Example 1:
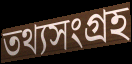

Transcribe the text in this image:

তথ্যসংগ্ৰহ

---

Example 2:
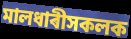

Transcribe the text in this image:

মালধাৰীসকলক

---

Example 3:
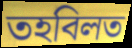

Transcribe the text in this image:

তহবিলত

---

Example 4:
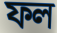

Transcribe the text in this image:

ফল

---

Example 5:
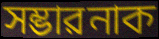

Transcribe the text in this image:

সম্ভাৱনাক